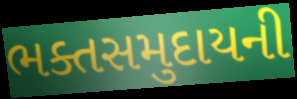
ભક્તસમુદાયની